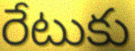
రేటుకు